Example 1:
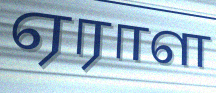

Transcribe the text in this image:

ஏராள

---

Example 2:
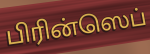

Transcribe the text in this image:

பிரின்ஸெப்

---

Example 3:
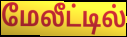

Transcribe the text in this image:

மேலீட்டில்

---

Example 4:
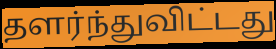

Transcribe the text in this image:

தளர்ந்துவிட்டது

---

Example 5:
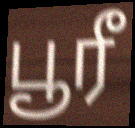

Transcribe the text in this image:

பூரீ